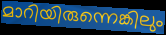
മാറിയിരുന്നെങ്കിലും